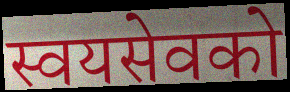
स्वयसेवको